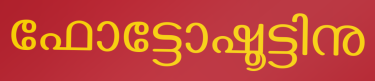
ഫോട്ടോഷൂട്ടിനു